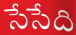
సేసేది